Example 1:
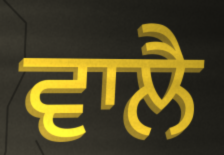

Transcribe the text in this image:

ਵਾਲੈ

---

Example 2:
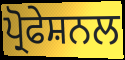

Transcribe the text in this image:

ਪ੍ਰੋਫੇਸ਼ਨਲ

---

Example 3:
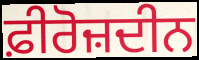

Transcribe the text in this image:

ਫ਼ੀਰੋਜ਼ਦੀਨ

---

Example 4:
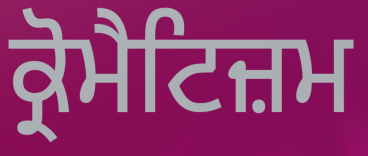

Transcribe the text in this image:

ਕ੍ਰੋਮੈਟਿਜ਼ਮ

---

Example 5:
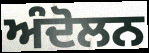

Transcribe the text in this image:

ਅੰਦੋਲਨ